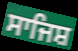
ਸਾਜਿਸ਼